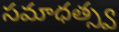
సమాధత్స్వ